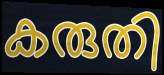
കരുതി